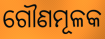
ଗୌଣମୂଳକ